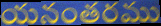
యనంతరము